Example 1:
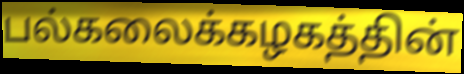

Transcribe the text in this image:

பல்கலைக்கழகத்தின்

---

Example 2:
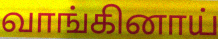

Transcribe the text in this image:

வாங்கினாய்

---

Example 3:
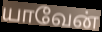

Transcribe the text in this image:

யாவேன்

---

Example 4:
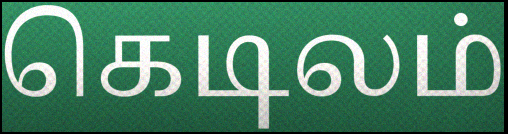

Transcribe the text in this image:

கெடிலம்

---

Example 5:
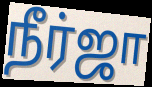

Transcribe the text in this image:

நீர்ஜா